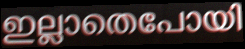
ഇല്ലാതെപോയി